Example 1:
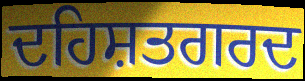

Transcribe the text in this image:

ਦਹਿਸ਼ਤਗਰਦ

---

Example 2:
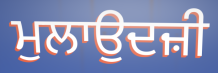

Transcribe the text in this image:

ਮੁਲਾਉਦਜ਼ੀ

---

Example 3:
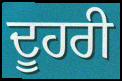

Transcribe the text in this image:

ਦੂਹਰੀ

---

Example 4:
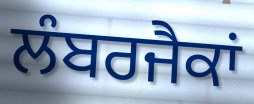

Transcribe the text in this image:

ਲੰਬਰਜੈਕਾਂ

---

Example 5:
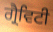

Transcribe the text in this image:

ਗ੍ਰੈਵਿਟੀ